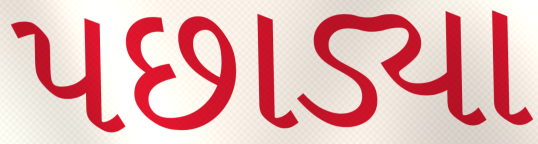
પછાડ્યા